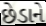
છેડાને